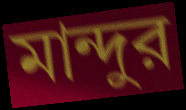
মান্দুর